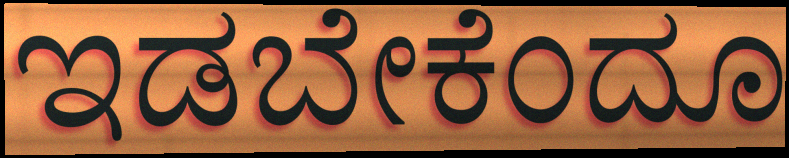
ಇಡಬೇಕೆಂದೂ